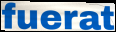
fuerat